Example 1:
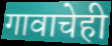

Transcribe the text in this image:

गावाचेही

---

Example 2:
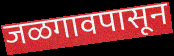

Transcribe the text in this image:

जळगावपासून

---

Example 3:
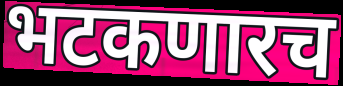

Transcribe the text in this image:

भटकणारच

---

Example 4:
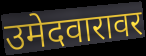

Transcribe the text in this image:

उमेदवारावर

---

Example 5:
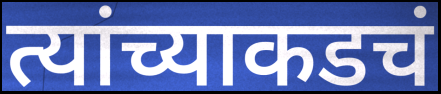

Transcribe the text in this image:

त्यांच्याकडचं